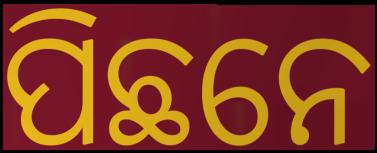
ପିଛନେ